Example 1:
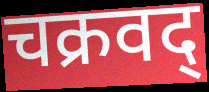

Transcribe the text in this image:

चक्रवद्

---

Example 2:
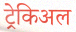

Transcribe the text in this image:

ट्रेकिअल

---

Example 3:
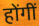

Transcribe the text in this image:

होंगीं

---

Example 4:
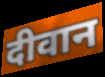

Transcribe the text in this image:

दीवान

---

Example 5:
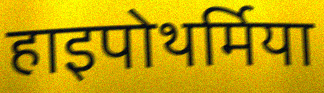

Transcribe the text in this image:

हाइपोथर्मिया